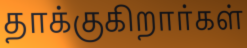
தாக்குகிறார்கள்